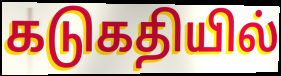
கடுகதியில்